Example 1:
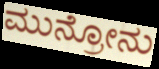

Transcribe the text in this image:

ಮುನ್ರೋನು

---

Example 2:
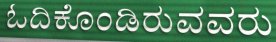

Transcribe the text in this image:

ಓದಿಕೊಂಡಿರುವವರು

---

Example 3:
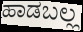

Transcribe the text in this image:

ಹಾಡಬಲ್ಲ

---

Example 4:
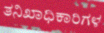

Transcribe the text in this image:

ತನಿಖಾಧಿಕಾರಿಗಳ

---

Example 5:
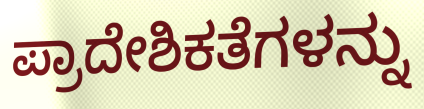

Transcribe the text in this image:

ಪ್ರಾದೇಶಿಕತೆಗಳನ್ನು